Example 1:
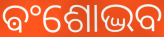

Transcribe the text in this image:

ଵଂଶୋଦ୍ଭବ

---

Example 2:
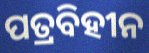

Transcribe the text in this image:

ପତ୍ରବିହୀନ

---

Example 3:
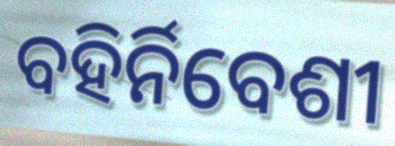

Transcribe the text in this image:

ବହିର୍ନିବେଶୀ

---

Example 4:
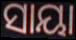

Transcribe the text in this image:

ସାୟା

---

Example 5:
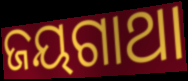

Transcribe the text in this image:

ଜୟଗାଥା